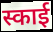
स्काई